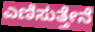
ಎಣಿಸುತ್ತೇನೆ